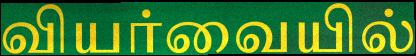
வியர்வையில்